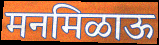
मनमिळाऊ